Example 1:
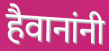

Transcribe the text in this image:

हैवानांनी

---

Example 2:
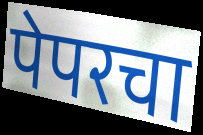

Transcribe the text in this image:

पेपरचा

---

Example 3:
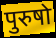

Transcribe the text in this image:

पुरुषो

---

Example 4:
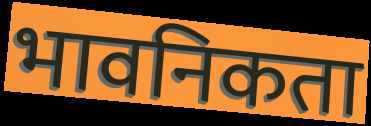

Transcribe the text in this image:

भावनिकता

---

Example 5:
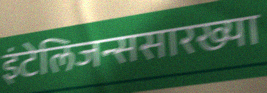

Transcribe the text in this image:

इंटेलिजन्ससारख्या